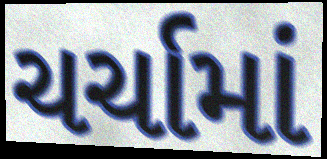
ચર્ચામાં